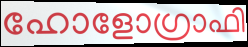
ഹോളോഗ്രാഫി